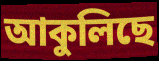
আকুলিছে